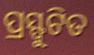
ପ୍ରସ୍ଫୁଟିତ